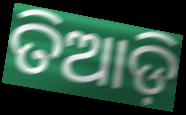
ତିଆଡ଼ି